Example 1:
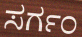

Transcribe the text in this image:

ಸರ್ಗಂ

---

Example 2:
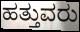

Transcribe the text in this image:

ಹತ್ತುವರು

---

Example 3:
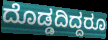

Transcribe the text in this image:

ದೊಡ್ಡದಿದ್ದರೂ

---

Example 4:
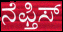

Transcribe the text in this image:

ನೆಫ್ತಿಸ್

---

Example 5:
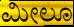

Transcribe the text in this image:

ಮೀಲೂ